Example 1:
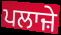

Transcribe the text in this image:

ਪਲਾਜ਼ੇ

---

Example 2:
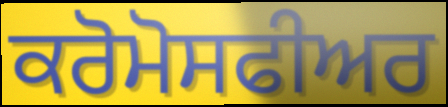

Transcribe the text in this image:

ਕਰੋਮੋਸਫੀਅਰ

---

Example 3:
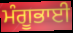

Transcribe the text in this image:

ਮੰਗੂਭਾਈ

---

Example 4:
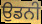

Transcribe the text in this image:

ਉਡਨੀ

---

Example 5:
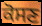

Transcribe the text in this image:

ਕੋਸਣ